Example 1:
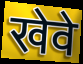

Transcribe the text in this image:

खेवे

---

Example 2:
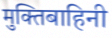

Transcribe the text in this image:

मुक्तिबाहिनी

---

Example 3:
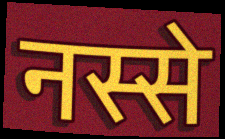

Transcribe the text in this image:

नस्से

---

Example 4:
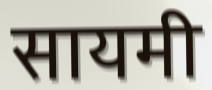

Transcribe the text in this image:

सायमी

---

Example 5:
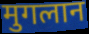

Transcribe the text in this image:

मुगलान